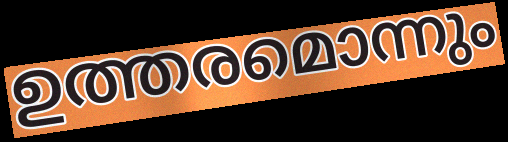
ഉത്തരമൊന്നും